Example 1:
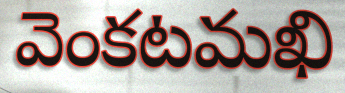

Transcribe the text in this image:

వెంకటమఖి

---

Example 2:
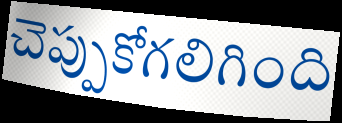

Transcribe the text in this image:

చెప్పుకోగలిగింది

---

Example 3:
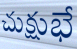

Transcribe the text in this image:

చుక్షుభే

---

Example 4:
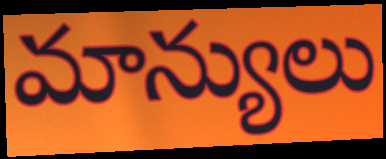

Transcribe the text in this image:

మాన్యులు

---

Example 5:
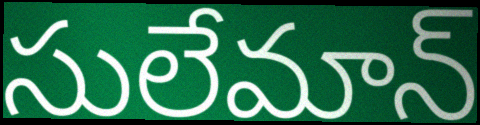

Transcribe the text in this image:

సులేమాన్